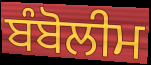
ਬੰਬੋਲੀਮ